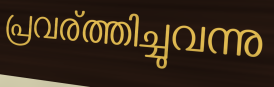
പ്രവര്ത്തിച്ചുവന്നു